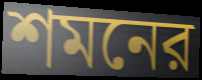
শমনের